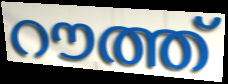
റൗത്ത്